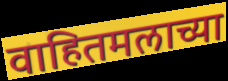
वाहितमलाच्या